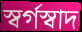
স্বর্গস্বাদ